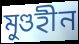
মুণ্ডহীন